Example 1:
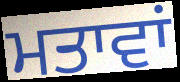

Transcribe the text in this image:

ਮਤਾਵਾਂ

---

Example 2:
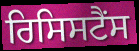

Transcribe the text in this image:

ਰਿਸਿਸਟੈਂਸ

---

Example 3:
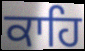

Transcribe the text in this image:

ਕਾਹਿ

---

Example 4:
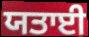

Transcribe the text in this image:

ਯਤਾਈ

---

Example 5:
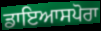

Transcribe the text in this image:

ਡਾਇਆਸਪੋਰਾ